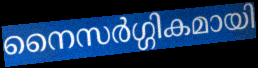
നൈസർഗ്ഗികമായി